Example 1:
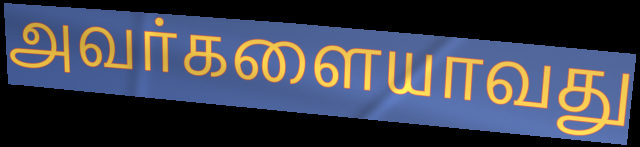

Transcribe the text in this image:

அவர்களையாவது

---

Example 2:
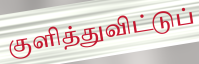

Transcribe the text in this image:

குளித்துவிட்டுப்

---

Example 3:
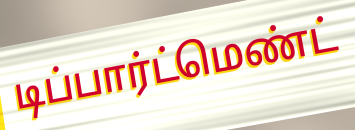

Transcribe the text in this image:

டிப்பார்ட்மெண்ட்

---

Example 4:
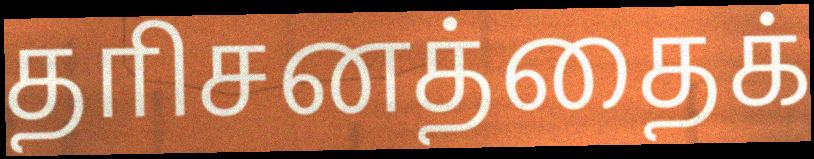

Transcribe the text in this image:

தரிசனத்தைக்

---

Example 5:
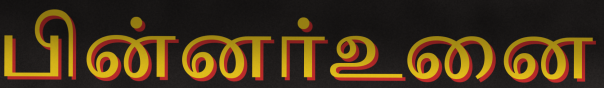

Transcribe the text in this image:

பின்னர்உனை